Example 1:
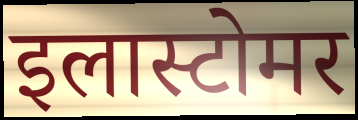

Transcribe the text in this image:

इलास्टोमर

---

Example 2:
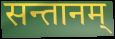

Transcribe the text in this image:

सन्तानम्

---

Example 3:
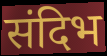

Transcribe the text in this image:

संदिभ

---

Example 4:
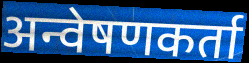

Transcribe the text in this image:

अन्वेषणकर्ता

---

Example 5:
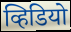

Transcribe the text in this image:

व्हिडियो